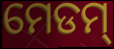
ମେଡମ୍